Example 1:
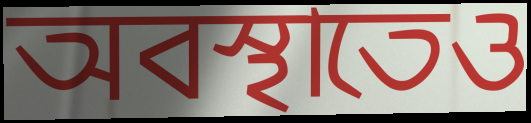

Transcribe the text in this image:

অবস্থাতেও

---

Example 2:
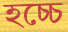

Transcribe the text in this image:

হচ্চে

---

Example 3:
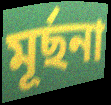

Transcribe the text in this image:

মূর্ছনা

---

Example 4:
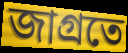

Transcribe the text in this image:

জাগ্রতে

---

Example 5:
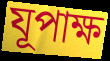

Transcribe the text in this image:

যূপাক্ষ